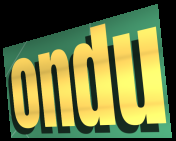
ondu